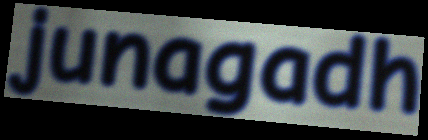
junagadh